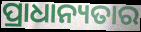
ପ୍ରାଧାନ୍ୟତାର